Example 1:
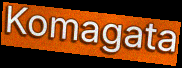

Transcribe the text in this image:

Komagata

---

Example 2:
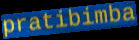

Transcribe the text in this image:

pratibimba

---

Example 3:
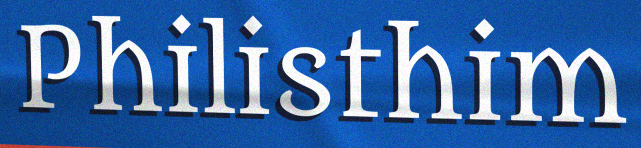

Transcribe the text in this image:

Philisthim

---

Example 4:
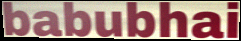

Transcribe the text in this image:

babubhai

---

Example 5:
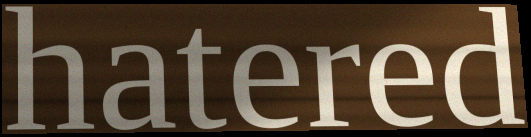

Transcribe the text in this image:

hatered